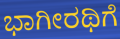
ಭಾಗೀರಥಿಗೆ